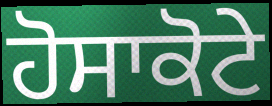
ਹੋਸਾਕੋਟੇ